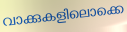
വാക്കുകളിലൊക്കെ